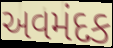
અવમંદક